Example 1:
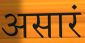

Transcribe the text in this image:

असारं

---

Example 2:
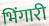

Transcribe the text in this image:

भिंगारी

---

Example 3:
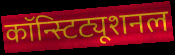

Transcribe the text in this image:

कॉन्स्टिट्यूशनल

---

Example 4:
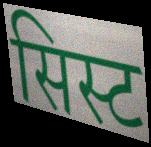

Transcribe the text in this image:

सिस्ट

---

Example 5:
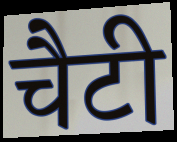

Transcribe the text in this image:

चैटी